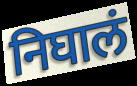
निघालं